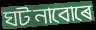
ঘটনাবোৰে